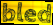
bled